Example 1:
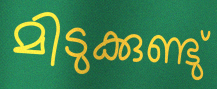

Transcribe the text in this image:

മിടുക്കുണ്ടു്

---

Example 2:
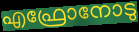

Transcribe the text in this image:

എഫ്രോനോടു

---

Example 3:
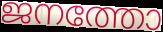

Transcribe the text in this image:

ജനത്തോ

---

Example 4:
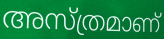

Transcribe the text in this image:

അസ്ത്രമാണ്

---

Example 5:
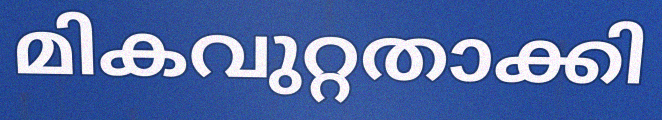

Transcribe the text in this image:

മികവുറ്റതാക്കി